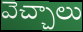
వెచ్చాలు